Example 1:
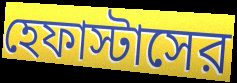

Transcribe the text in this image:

হেফাস্টাসের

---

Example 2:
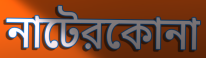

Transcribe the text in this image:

নাটেরকোনা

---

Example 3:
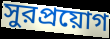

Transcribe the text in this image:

সুরপ্রয়োগ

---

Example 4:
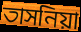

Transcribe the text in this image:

তাসনিয়া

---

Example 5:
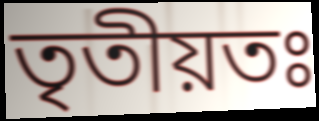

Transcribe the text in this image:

তৃতীয়তঃ